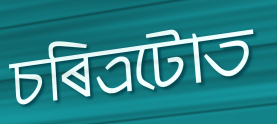
চৰিত্ৰটোত